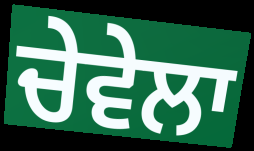
ਚੇਵੇਲਾ